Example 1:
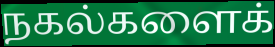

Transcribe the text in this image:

நகல்களைக்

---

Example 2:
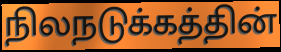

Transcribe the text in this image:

நிலநடுக்கத்தின்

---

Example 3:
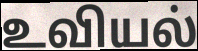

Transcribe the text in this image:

உவியல்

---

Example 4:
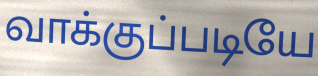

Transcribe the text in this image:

வாக்குப்படியே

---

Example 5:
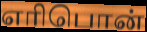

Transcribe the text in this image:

எரிபொன்